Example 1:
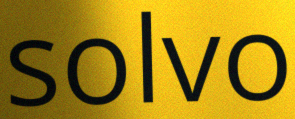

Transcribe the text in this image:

solvo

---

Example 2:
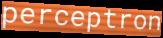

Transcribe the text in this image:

perceptron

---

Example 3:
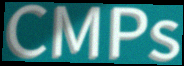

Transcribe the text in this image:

CMPs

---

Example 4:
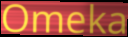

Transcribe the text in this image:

Omeka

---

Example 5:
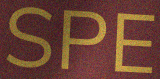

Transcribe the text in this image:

SPE